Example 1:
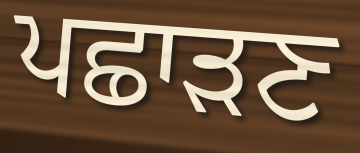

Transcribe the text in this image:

ਪਛਾੜਣ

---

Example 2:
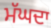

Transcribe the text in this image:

ਮੱਘਦਾ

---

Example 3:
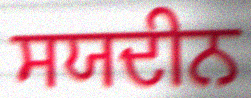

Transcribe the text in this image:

ਸਯਦੀਨ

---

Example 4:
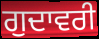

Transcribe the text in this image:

ਗੁਦਾਵਰੀ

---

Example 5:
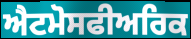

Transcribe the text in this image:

ਐਟਮੋਸਫੀਅਰਿਕ